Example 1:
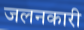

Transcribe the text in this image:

जलनकारी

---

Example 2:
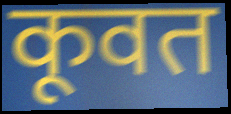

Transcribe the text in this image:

कूवत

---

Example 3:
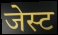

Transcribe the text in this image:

जेस्‍ट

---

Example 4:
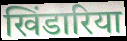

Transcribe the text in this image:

खिंडारिया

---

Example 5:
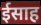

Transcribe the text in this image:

ईसाह